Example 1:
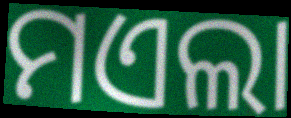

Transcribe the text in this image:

ମଏଲା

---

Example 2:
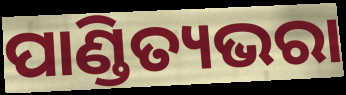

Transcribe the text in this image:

ପାଣ୍ଡିତ୍ୟଭରା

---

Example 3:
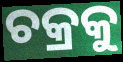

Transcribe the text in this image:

ଚକ୍ରକୁ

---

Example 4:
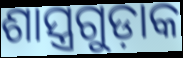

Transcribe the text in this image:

ଶାସ୍ତ୍ରଗୁଡ଼ାକ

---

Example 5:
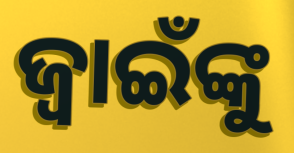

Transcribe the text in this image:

ଜ୍ବାଇଁଙ୍କୁ